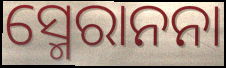
ସ୍ମେରାନନା